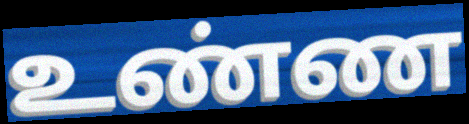
உண்ண